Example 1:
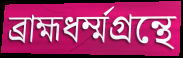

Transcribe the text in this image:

ব্রাহ্মধর্ম্মগ্রন্থে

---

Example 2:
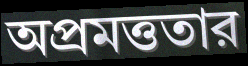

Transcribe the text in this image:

অপ্রমত্ততার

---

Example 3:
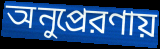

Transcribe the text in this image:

অনুপ্রেরণায়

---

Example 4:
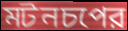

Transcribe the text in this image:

মটনচপের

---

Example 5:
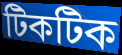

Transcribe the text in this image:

টিকটিক